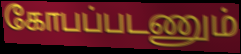
கோபப்படணும்